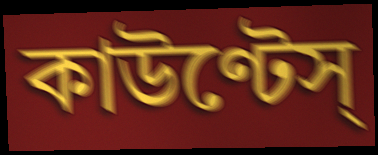
কাউণ্টেস্